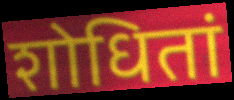
शोधितां